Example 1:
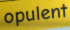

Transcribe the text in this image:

opulent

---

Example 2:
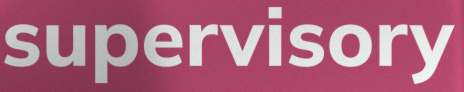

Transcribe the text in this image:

supervisory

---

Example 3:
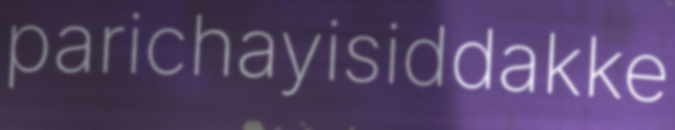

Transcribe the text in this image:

parichayisiddakke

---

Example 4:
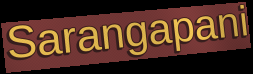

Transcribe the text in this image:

Sarangapani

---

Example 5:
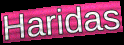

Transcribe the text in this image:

Haridas